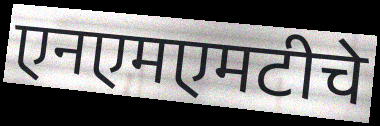
एनएमएमटीचे